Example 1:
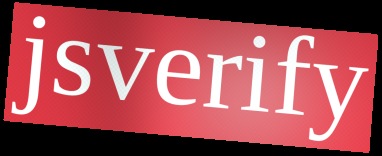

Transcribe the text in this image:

jsverify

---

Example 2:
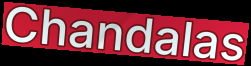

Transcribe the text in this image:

Chandalas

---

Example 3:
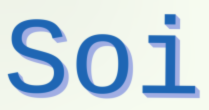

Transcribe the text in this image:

Soi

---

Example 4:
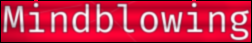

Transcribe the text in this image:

Mindblowing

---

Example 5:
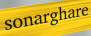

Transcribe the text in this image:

sonarghare